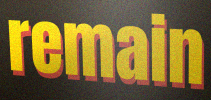
remain